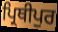
ਪ੍ਰਿਥੀਪੁਰ